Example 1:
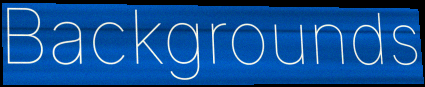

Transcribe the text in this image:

Backgrounds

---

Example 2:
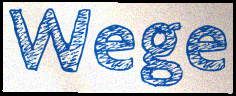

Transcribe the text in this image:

Wege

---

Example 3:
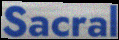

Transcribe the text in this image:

Sacral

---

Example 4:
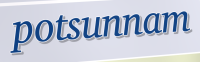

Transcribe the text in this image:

potsunnam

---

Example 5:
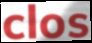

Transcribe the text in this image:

clos